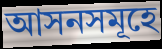
আসনসমূহে